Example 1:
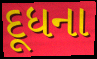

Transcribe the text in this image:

દૂધના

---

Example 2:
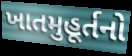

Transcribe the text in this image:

ખાતમુહૂર્તનો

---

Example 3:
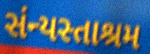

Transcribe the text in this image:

સંન્યસ્તાશ્રમ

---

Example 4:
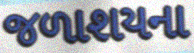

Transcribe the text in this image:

જળાશયના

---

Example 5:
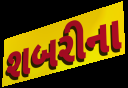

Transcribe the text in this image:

શબરીના